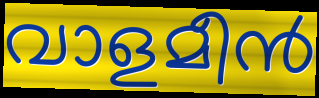
വാളമീൻ